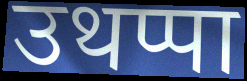
उथप्पा